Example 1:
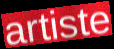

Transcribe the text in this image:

artiste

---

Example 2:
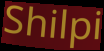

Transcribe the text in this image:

Shilpi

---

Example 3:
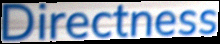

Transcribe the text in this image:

Directness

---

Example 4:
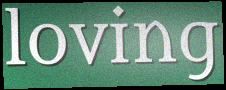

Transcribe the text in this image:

loving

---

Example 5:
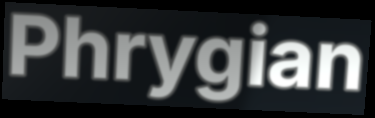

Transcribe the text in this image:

Phrygian